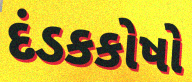
દંડકકોષો